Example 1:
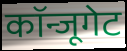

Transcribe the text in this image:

कॉन्जूगेट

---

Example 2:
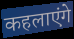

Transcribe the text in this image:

कहलाएंगे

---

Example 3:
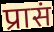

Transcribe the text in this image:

प्रासं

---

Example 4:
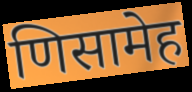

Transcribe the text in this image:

णिसामेह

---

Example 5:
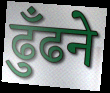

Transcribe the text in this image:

ढुँढने